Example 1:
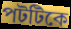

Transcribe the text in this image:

পটটিকে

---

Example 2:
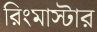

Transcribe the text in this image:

রিংমাস্টার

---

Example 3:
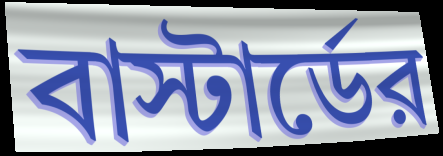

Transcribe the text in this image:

বাস্টার্ডের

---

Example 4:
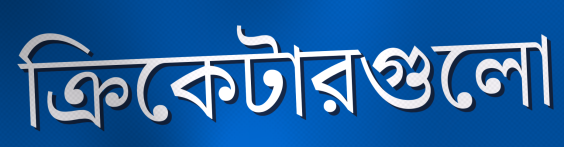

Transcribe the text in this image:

ক্রিকেটারগুলো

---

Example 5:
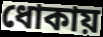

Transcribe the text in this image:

ধোকায়